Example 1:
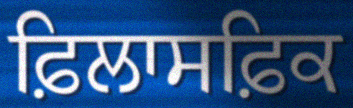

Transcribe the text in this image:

ਫ਼ਿਲਾਸਫ਼ਿਕ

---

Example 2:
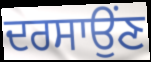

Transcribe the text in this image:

ਦਰਸਾਉਂਣ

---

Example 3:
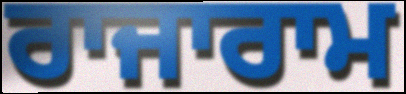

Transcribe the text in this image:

ਰਾਜਾਰਾਮ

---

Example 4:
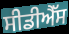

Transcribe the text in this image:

ਸੀਡੀਐੱਸ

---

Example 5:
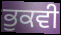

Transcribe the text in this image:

ਭੁਕਵੀ